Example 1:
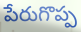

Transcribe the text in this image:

పేరుగొప్ప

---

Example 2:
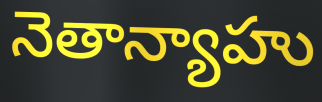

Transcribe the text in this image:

నెతాన్యాహు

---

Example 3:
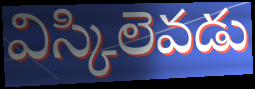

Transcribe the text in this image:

విస్కిలెవడు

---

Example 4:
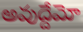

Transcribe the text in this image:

అవుద్దేమో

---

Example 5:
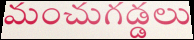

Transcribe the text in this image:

మంచుగడ్డలు